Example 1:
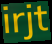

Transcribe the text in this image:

irjt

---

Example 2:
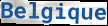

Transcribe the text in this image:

Belgique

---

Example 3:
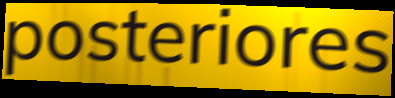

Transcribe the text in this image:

posteriores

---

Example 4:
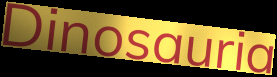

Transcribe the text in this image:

Dinosauria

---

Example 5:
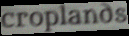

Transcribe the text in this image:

croplands